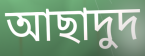
আছাদুদ